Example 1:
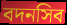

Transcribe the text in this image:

বদনসিব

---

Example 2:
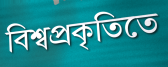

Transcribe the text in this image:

বিশ্বপ্রকৃতিতে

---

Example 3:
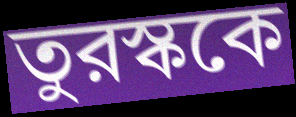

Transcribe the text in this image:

তুরস্ককে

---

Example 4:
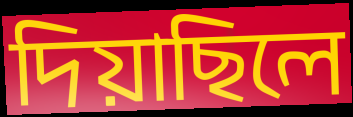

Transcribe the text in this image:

দিয়াছিলে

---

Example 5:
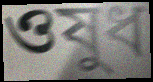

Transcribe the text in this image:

ওষুধ